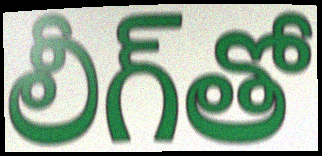
లీగ్‌తో